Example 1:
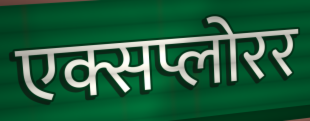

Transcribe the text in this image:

एक्सप्लोरर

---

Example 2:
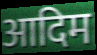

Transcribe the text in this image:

आदिम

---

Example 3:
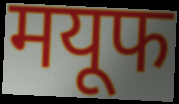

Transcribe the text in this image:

मयूफ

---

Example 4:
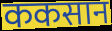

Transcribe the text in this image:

ककसान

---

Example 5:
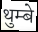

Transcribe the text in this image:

थुम्बे